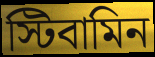
স্টিবামিন